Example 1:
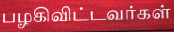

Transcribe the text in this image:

பழகிவிட்டவர்கள்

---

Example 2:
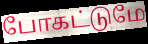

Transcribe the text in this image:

போகட்டுமே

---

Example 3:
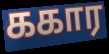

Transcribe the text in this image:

ககார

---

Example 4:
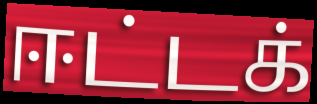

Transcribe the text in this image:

ஈட்டக்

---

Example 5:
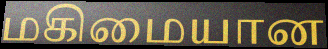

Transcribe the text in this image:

மகிமையான